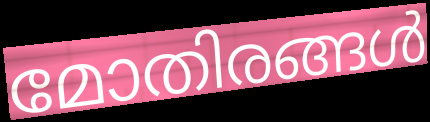
മോതിരങ്ങൾ